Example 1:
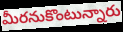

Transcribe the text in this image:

మీరనుకొంటున్నారు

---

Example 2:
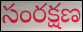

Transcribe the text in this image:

సంరక్షణ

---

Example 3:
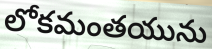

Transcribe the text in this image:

లోకమంతయును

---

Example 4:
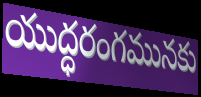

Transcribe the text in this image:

యుద్ధరంగమునకు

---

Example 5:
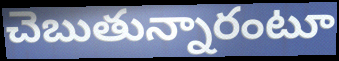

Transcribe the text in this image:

చెబుతున్నారంటూ